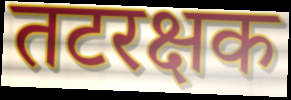
तटरक्षक